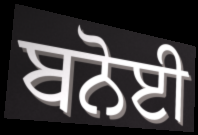
ਬਨੋਈ